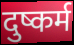
दुष्कर्म